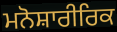
ਮਨੋਸ਼ਾਰੀਰਿਕ